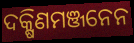
ଦକ୍ଷିଣମଞ୍ଜନେନ